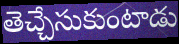
తెచ్చేసుకుంటాడు